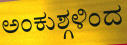
ಅಂಕುಶ್ಗಳಿಂದ